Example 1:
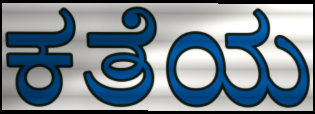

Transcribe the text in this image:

ಕತೆಯ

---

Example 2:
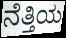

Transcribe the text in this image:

ನೆತ್ತಿಯ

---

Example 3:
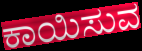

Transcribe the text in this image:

ಕಾಯಿಸುವ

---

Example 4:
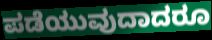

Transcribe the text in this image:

ಪಡೆಯುವುದಾದರೂ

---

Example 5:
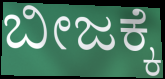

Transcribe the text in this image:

ಬೀಜಕ್ಕೆ